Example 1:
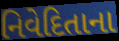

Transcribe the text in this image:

નિવેદિતાના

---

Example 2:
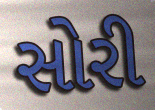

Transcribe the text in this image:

સોરી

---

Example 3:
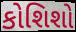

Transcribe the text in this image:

કોશિશો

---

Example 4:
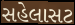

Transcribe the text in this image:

સહેલાસટ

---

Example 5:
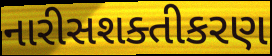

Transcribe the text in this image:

નારીસશક્તીકરણ